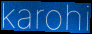
karohi